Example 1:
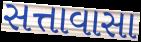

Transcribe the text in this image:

સત્તાવાસા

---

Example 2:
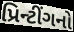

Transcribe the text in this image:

પ્રિન્ટીંગનો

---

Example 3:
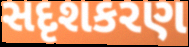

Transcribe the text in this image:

સદૃશકરણ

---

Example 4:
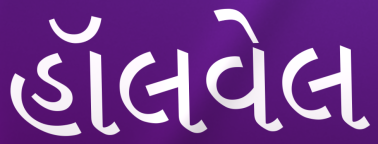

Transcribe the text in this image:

હૉલવેલ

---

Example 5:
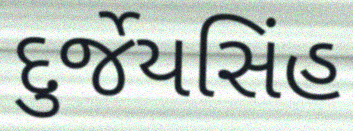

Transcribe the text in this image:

દુર્જેયસિંહ